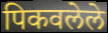
पिकवलेले